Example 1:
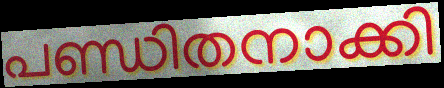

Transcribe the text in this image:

പണ്ഡിതനാക്കി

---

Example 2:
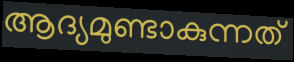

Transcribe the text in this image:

ആദ്യമുണ്ടാകുന്നത്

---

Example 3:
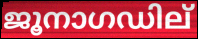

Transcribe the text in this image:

ജൂനാഗഡില്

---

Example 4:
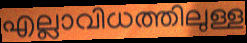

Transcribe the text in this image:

എല്ലാവിധത്തിലുള്ള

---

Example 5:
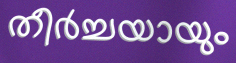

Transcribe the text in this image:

തീർച്ചയായും